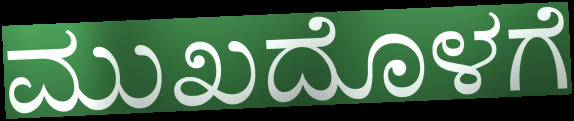
ಮುಖದೊಳಗೆ